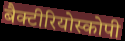
बैक्टीरियोस्कोपी